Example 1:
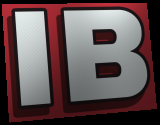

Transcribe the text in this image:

IB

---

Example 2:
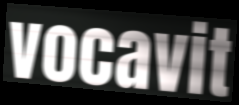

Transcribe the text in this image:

vocavit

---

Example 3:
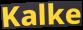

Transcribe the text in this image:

Kalke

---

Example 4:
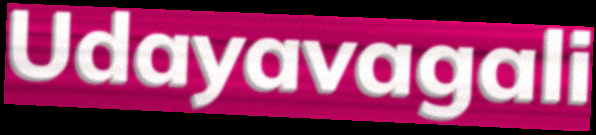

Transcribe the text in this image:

Udayavagali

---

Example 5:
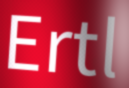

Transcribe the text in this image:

Ertl